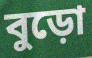
বুড়ো